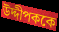
উদ্দীপককে